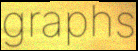
graphs